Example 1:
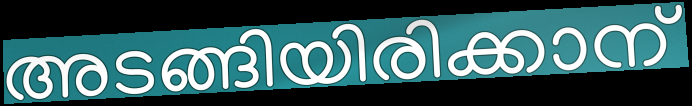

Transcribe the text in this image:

അടങ്ങിയിരിക്കാന്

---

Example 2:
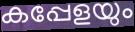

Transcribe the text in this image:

കപ്പേളയും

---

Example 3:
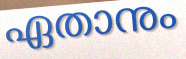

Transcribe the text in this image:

ഏതാനും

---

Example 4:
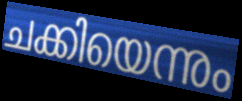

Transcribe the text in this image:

ചക്കിയെന്നും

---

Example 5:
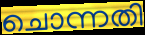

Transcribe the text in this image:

ചൊന്നതി